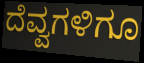
ದೆವ್ವಗಳಿಗೂ